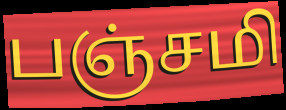
பஞ்சமி